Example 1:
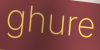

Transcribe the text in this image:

ghure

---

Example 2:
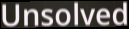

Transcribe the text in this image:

Unsolved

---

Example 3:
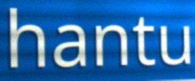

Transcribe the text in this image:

hantu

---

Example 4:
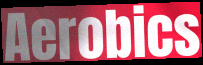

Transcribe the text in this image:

Aerobics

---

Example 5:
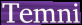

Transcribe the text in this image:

Temni